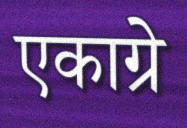
एकाग्रे